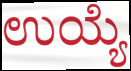
ಉಯ್ಯೆ